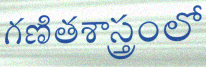
గణితశాస్త్రంలో